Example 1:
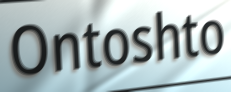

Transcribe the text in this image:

Ontoshto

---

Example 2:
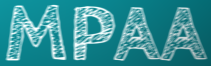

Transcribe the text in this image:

MPAA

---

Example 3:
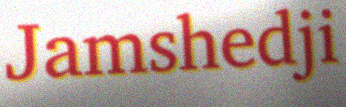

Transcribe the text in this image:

Jamshedji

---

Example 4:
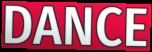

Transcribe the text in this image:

DANCE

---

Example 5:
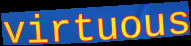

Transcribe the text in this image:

virtuous